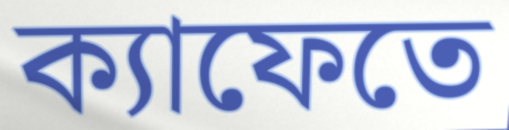
ক্যাফেতে